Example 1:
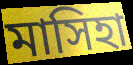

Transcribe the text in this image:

মাসিহা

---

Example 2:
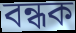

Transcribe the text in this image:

বন্ধক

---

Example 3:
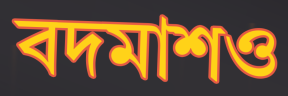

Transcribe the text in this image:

বদমাশও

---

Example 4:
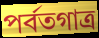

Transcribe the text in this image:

পর্বতগাত্র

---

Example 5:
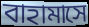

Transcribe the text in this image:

বাহামাসে